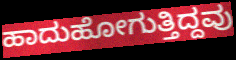
ಹಾದುಹೋಗುತ್ತಿದ್ದವು